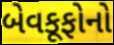
બેવકૂફોનો